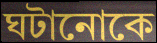
ঘটানোকে